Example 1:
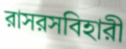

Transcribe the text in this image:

রাসরসবিহারী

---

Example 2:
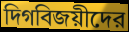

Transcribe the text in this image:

দিগবিজয়ীদের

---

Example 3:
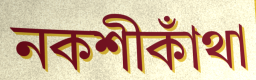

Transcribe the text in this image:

নকশীকাঁথা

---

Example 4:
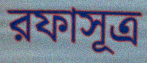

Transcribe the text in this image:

রফাসূত্র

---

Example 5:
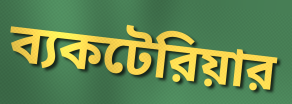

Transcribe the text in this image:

ব্যকটেরিয়ার